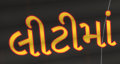
લીટીમાં